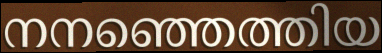
നനഞ്ഞെത്തിയ